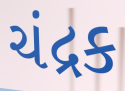
ચંદ્રક